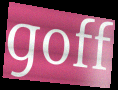
goff